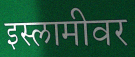
इस्लामीवर